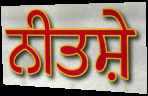
ਨੀਤਸ਼ੇ